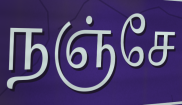
நஞ்சே